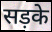
सड़के